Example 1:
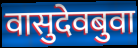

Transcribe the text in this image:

वासुदेवबुवा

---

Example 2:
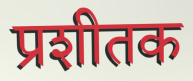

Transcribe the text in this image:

प्रशीतक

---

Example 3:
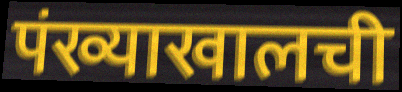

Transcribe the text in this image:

पंख्याखालची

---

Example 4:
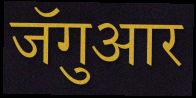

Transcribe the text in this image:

जॅगुआर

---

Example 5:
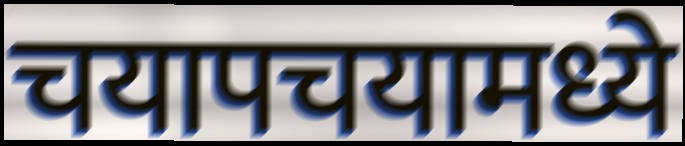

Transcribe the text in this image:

चयापचयामध्ये